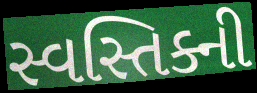
સ્વસ્તિક્ની